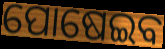
ପୋଷେଇବ